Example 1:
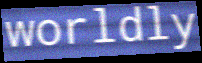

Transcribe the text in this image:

worldly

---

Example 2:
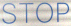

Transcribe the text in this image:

STOP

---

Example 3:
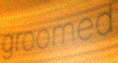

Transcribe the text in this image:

groomed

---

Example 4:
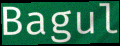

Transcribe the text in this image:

Bagul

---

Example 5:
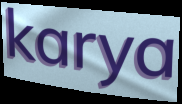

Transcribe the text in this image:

karya